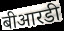
बीआरडी